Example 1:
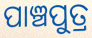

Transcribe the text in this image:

ପାଞ୍ଚପୁତ୍ର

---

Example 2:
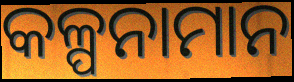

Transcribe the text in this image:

କଳ୍ପନାମାନ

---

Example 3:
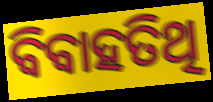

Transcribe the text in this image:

ବିବାହତିଥି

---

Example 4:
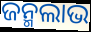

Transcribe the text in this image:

ଜନ୍ମଲାଭ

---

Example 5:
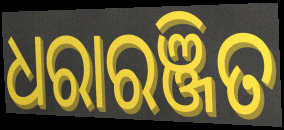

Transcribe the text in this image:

ଧରାରଞ୍ଜିତ